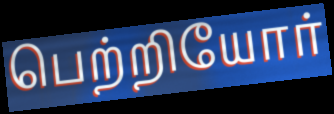
பெற்றியோர்